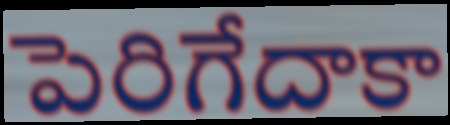
పెరిగేదాకా